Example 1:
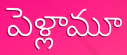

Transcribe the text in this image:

పెళ్లామూ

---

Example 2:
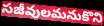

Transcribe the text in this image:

సజీవులమనుకొని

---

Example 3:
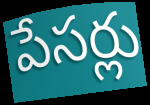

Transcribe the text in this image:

పేసర్లు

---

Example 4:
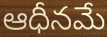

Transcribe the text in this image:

ఆధీనమే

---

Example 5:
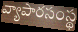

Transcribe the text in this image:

వ్యాపారసంస్థ